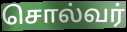
சொல்வர்